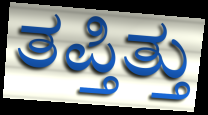
ತಪ್ತಿತ್ತು